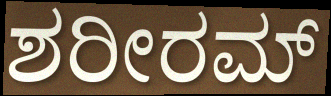
ಶರೀರಮ್